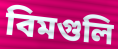
বিমগুলি